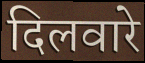
दिलवारे